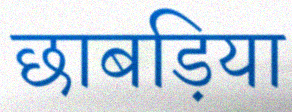
छाबड़िया